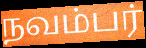
நவம்பர்